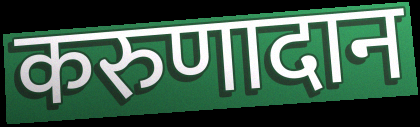
करुणादान